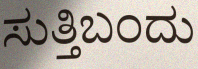
ಸುತ್ತಿಬಂದು